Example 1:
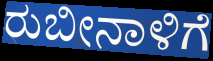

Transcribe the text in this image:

ರುಬೀನಾಳಿಗೆ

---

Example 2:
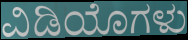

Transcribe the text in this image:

ವಿಡಿಯೊಗಳು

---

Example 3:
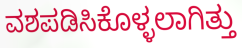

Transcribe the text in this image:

ವಶಪಡಿಸಿಕೊಳ್ಳಲಾಗಿತ್ತು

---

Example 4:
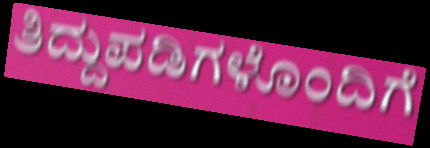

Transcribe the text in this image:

ತಿದ್ದುಪಡಿಗಳೊಂದಿಗೆ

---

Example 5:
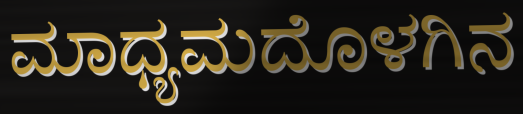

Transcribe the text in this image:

ಮಾಧ್ಯಮದೊಳಗಿನ